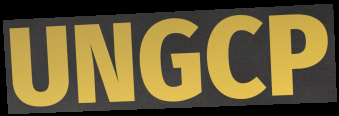
UNGCP